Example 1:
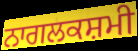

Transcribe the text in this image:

ਨਾਗਲਕਸ਼ਮੀ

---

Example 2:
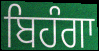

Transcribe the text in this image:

ਬਿਹੰਗਾ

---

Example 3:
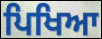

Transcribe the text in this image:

ਪਿਖਿਆ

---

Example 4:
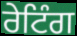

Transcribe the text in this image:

ਰੇਟਿੰਗ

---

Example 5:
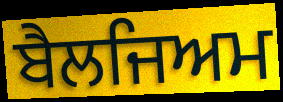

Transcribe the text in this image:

ਬੈਲਜਿਅਮ